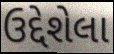
ઉદ્દેશેલા